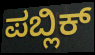
ಪಬ್ಲಿಕ್